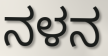
ನಳನ